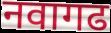
नवागढ